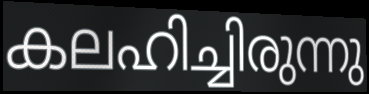
കലഹിച്ചിരുന്നു